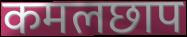
कमलछाप